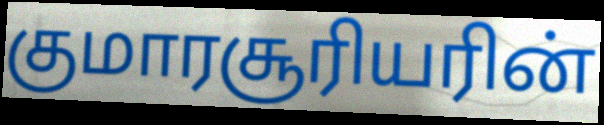
குமாரசூரியரின்